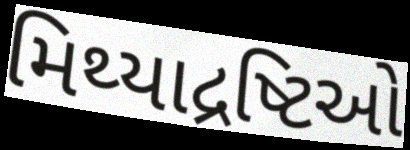
મિથ્યાદ્રષ્ટિઓ